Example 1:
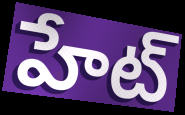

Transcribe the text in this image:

హేట్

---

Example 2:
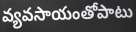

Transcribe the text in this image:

వ్యవసాయంతోపాటు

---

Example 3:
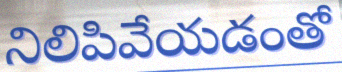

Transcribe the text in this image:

నిలిపివేయడంతో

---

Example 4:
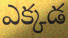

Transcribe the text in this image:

ఎక్కడ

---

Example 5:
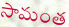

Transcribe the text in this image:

సామంత